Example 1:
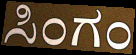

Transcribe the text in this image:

ಸಿಂಗಂ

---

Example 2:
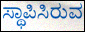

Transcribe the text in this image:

ಸ್ಥಾಪಿಸಿರುವ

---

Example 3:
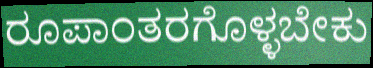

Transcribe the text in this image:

ರೂಪಾಂತರಗೊಳ್ಳಬೇಕು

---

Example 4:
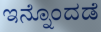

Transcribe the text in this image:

ಇನ್ನೊಂದಡೆ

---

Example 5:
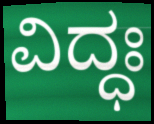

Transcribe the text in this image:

ವಿದ್ಧಃ